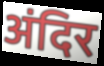
अंदिर